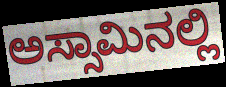
ಅಸ್ಸಾಮಿನಲ್ಲಿ